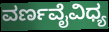
ವರ್ಣವೈವಿಧ್ಯ